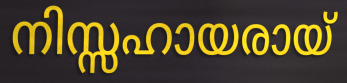
നിസ്സഹായരായ്